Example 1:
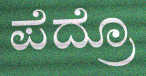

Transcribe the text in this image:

ಪೆದ್ರೊ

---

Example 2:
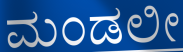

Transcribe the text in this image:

ಮಂಡಲೀ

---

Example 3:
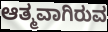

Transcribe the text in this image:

ಆತ್ಮವಾಗಿರುವ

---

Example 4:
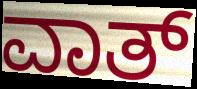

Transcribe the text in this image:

ವಾತ್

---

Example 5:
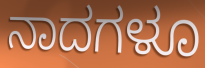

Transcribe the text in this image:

ನಾದಗಳೂ